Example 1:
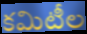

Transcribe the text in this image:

కమిటీల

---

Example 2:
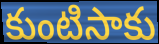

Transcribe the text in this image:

కుంటిసాకు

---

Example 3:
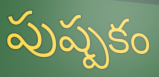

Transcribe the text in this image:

పుష్పకం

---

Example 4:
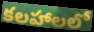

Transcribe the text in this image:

కలహాలలో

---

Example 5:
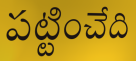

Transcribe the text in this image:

పట్టించేది